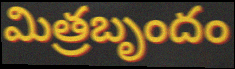
మిత్రబృందం